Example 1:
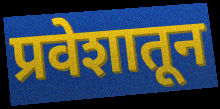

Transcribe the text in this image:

प्रवेशातून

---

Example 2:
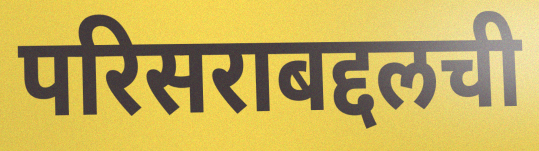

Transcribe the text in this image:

परिसराबद्दलची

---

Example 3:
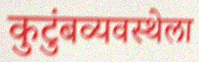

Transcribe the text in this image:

कुटुंबव्यवस्थेला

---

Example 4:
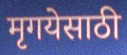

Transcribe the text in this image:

मृगयेसाठी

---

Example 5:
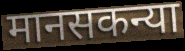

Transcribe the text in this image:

मानसकन्या